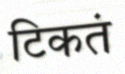
टिकतं